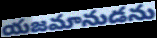
యజమానుడను